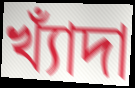
খ্যাঁদা